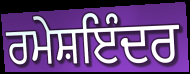
ਰਮੇਸ਼ਇੰਦਰ